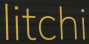
litchi